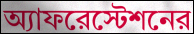
অ্যাফরেস্টেশনের